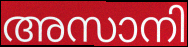
അസാനി